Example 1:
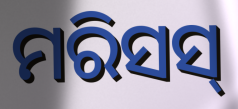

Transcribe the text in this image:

ମରିସସ୍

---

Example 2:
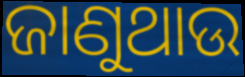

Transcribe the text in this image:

ଜାଣୁଥାଉ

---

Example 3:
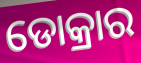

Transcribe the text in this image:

ଡୋକ୍ରାର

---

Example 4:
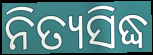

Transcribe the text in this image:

ନିତ୍ୟସିଦ୍ଧ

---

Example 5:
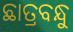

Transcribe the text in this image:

ଛାତ୍ରବନ୍ଧୁ